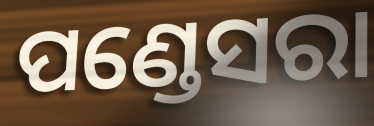
ପଣ୍ଡେସରା